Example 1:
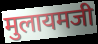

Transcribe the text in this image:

मुलायमजी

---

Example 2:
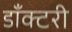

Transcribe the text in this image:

डाँक्टरी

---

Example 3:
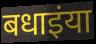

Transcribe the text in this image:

बधाइंया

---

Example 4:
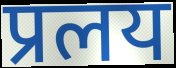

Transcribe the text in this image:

प्रलय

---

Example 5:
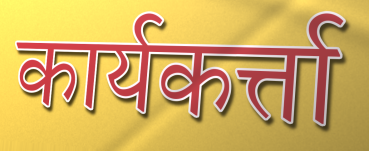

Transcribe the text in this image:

कार्यकर्त्ता